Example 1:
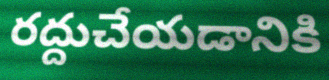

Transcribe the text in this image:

రద్దుచేయడానికి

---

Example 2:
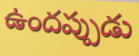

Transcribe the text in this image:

ఉందప్పుడు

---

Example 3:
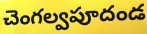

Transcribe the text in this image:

చెంగల్వపూదండ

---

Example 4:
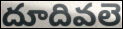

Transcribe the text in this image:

దూదివలె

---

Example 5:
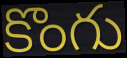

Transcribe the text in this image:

కొంగు